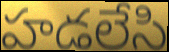
హడలేసి